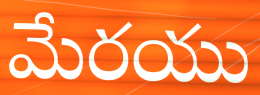
మేరయు